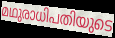
മഥുരാധിപതിയുടെ